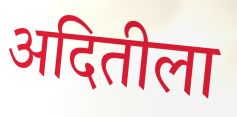
अदितीला